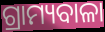
ଗ୍ରାମ୍ୟବାଳା